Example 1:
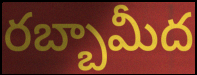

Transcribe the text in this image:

రబ్బామీద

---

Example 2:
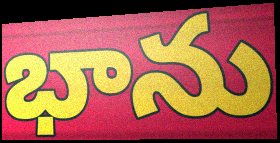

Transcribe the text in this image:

భాను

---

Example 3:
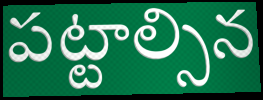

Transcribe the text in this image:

పట్టాల్సిన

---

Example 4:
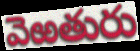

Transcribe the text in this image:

వెఱతురు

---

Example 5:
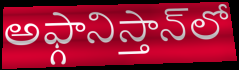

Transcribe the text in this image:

అఫ్గానిస్తాన్‌లో